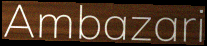
Ambazari